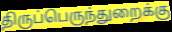
திருப்பெருந்துறைக்கு